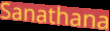
Sanathana